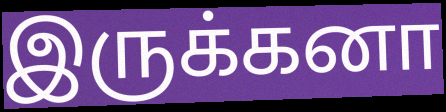
இருக்கனா